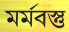
মৰ্মবস্তু